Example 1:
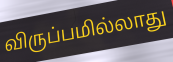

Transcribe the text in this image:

விருப்பமில்லாது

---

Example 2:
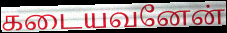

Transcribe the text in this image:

கடையவனேன்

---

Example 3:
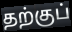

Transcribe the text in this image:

தற்குப்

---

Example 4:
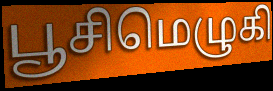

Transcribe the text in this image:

பூசிமெழுகி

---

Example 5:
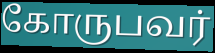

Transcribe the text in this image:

கோருபவர்